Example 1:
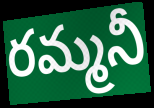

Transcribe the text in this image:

రమ్మనీ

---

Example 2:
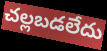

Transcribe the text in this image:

చల్లబడలేదు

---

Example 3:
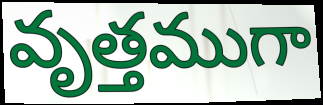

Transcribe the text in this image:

వృత్తముగా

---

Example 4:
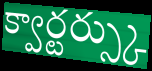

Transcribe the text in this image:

క్వార్టర్స్కు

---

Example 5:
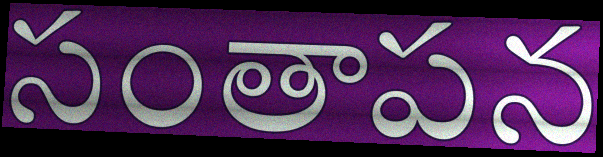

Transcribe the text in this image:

సంతాపన